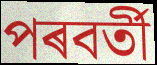
পৰবৰ্তী